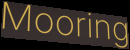
Mooring